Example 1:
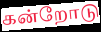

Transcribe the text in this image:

கன்றோடு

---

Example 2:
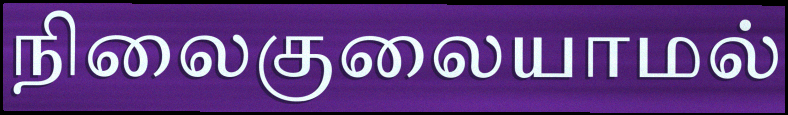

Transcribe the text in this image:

நிலைகுலையாமல்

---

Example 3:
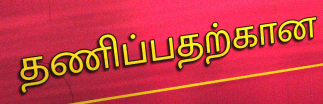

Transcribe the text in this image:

தணிப்பதற்கான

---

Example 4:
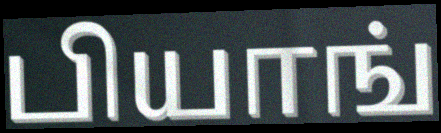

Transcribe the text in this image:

பியாங்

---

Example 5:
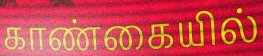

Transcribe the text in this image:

காண்கையில்